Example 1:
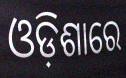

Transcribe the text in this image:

ଓଡ଼ିଶାରେ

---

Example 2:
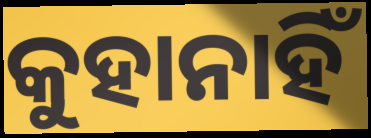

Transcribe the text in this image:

କୁହାନାହିଁ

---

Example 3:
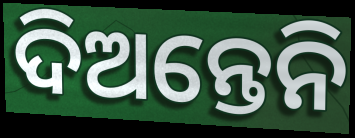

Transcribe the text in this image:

ଦିଅନ୍ତେନି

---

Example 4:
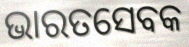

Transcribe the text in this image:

ଭାରତସେବକ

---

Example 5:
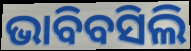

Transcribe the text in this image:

ଭାବିବସିଲି